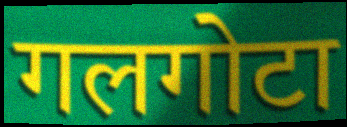
गलगोटा